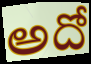
అదో